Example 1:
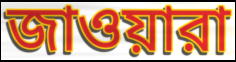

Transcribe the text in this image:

জাওয়ারা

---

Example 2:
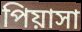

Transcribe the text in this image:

পিয়াসা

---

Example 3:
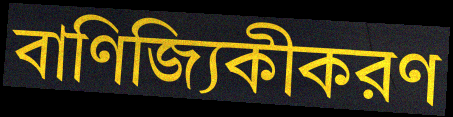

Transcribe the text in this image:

বাণিজ্যিকীকরণ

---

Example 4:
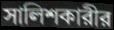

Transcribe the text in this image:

সালিশকারীর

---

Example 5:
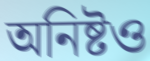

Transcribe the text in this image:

অনিষ্টও